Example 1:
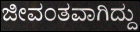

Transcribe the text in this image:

ಜೀವಂತವಾಗಿದ್ದು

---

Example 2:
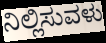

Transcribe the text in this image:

ನಿಲ್ಲಿಸುವಳು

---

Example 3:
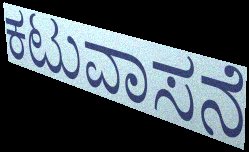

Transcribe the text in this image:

ಕಟುವಾಸನೆ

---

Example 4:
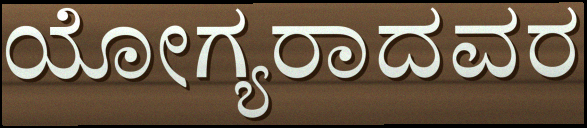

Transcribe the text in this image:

ಯೋಗ್ಯರಾದವರ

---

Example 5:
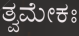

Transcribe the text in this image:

ತ್ವಮೇಕಃ